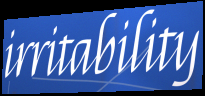
irritability